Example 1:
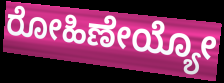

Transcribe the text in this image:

ರೋಹಿಣೇಯ್ಯೋ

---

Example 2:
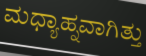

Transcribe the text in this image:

ಮಧ್ಯಾಹ್ನವಾಗಿತ್ತು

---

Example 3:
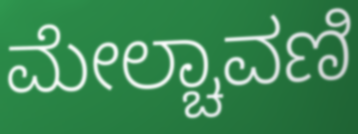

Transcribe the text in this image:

ಮೇಲ್ಚಾವಣಿ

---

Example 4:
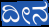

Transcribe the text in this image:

ದೀನ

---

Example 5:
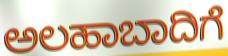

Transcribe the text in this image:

ಅಲಹಾಬಾದಿಗೆ